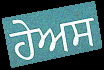
ਹੇਅਸ